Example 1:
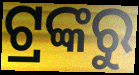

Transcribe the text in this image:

ଟ୍ରଙ୍କରୁ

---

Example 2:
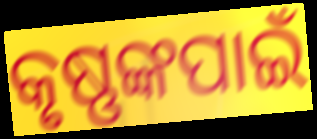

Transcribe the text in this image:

କୃଷ୍ଣଙ୍କପାଇଁ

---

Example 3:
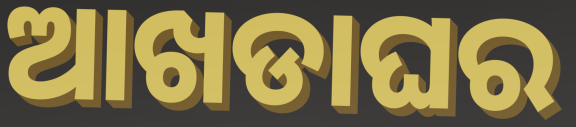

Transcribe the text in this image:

ଆଖଡାଘର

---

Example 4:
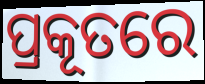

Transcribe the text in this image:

ପ୍ରକୂତରେ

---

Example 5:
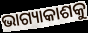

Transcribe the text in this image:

ଭାଗ୍ୟାକାଶକୁ